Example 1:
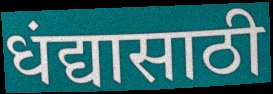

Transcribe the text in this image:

धंद्यासाठी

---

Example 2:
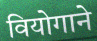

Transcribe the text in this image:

वियोगाने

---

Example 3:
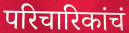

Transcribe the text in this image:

परिचारिकांचं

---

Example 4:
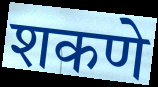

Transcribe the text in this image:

शकणे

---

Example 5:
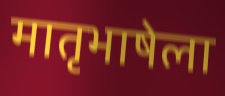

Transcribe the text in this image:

मातृभाषेला